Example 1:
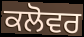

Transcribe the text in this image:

ਕਲੋਵਰ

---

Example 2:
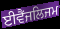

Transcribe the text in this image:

ਈਵੈਂਜਲਿਜਮ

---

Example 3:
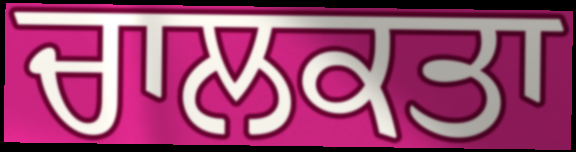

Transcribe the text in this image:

ਚਾਲਕਤਾ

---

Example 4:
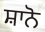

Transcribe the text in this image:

ਸ਼ਾਨੋ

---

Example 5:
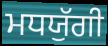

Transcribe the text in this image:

ਮਧਯੁੱਗੀ